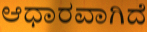
ಆಧಾರವಾಗಿದೆ